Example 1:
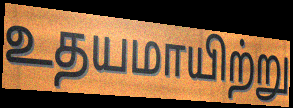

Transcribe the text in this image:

உதயமாயிற்று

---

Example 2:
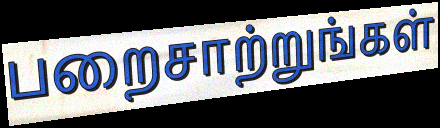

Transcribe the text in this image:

பறைசாற்றுங்கள்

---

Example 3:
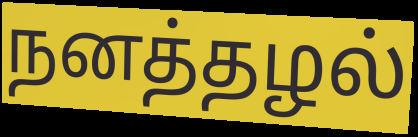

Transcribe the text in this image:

நனத்தழல்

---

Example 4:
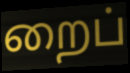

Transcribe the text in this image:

றைப்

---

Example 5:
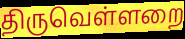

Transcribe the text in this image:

திருவெள்ளறை